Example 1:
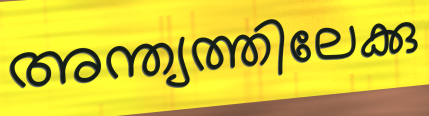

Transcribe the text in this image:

അന്ത്യത്തിലേക്കു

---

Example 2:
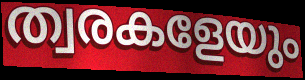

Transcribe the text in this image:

ത്വരകളേയും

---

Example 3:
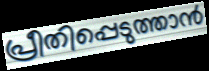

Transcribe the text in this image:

പ്രീതിപ്പെടുത്താൻ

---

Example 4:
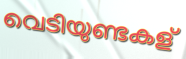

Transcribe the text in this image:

വെടിയുണ്ടകള്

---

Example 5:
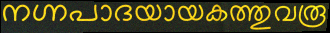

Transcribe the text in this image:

നഗ്നപാദയായകത്തുവരൂ